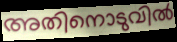
അതിനൊടുവിൽ